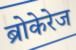
ब्रोकेरेज